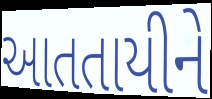
આતતાયીને